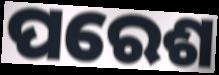
ପରେଶ